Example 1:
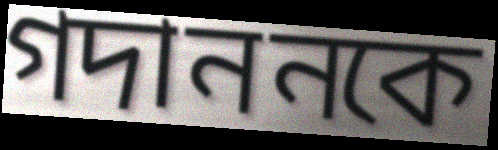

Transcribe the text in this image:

গদাননকে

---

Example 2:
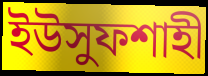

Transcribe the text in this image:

ইউসুফশাহী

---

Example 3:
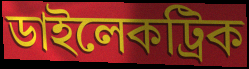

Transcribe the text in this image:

ডাইলেকট্রিক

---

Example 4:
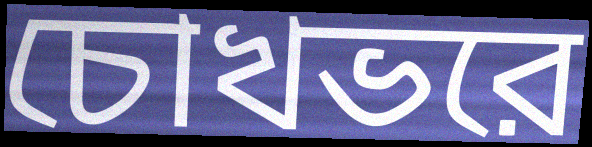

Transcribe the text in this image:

চোখভরে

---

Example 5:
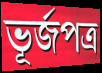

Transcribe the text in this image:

ভূর্জপত্র